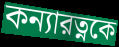
কন্যারত্নকে